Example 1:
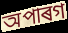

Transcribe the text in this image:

অপাৰগ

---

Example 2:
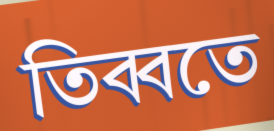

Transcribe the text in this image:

তিব্বতে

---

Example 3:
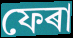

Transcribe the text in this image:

ফেৰা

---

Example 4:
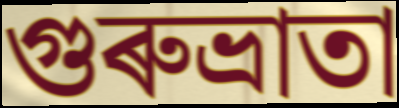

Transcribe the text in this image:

গুৰুভ্ৰাতা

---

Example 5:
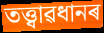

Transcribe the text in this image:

তত্ত্বাৱধানৰ